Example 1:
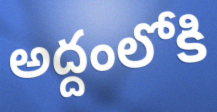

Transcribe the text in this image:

అద్దంలోకి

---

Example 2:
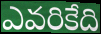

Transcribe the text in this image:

ఎవరికేది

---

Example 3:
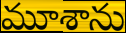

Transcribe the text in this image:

మూశాను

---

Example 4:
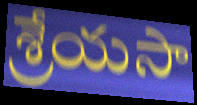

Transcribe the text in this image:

శ్రేయసా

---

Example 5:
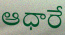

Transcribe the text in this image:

ఆధారే